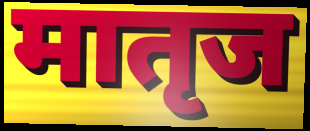
मातृज